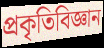
প্রকৃতিবিজ্ঞান